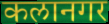
कलानगर